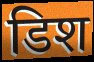
डिश